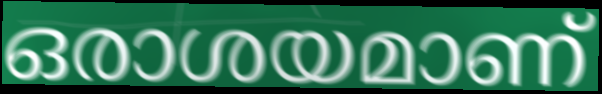
ഒരാശയമാണ്